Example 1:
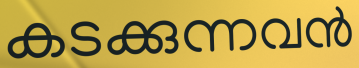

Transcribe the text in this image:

കടക്കുന്നവൻ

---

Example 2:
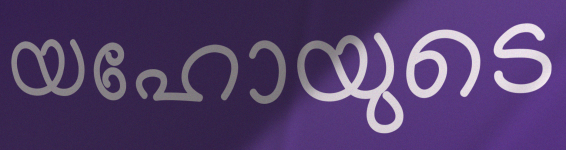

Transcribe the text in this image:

യഹോയുടെ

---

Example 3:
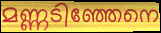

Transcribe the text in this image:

മണ്ണടിഞ്ഞേനെ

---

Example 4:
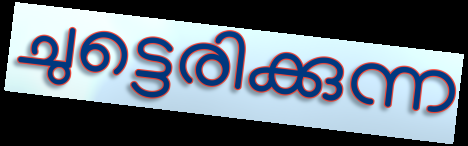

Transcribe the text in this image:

ചുട്ടെരിക്കുന്ന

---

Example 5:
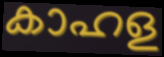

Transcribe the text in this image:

കാഹള